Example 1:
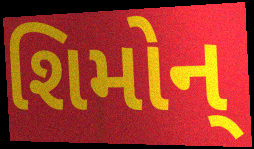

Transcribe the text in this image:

શિમોન્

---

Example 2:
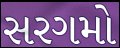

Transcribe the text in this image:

સરગમો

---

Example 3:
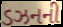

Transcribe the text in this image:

ડઝનની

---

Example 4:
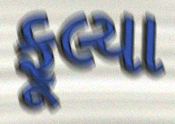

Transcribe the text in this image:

ફૂલ્યા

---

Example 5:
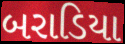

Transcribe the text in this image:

બરાડિયા